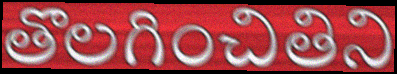
తొలగించితిని